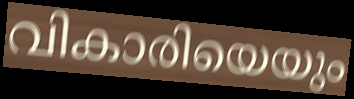
വികാരിയെയും